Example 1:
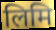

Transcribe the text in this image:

लिमि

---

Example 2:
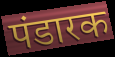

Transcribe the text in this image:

पंडारक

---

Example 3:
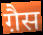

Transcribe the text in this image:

ग़ैस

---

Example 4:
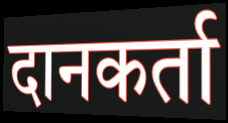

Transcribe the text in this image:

दानकर्ता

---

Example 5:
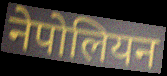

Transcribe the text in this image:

नेपोलियन